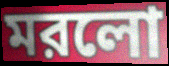
মরলো